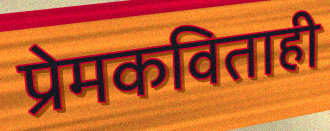
प्रेमकविताही